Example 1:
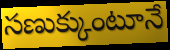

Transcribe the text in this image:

సణుక్కుంటూనే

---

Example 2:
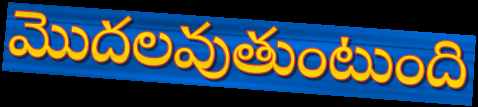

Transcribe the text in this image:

మొదలవుతుంటుంది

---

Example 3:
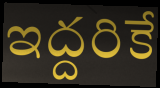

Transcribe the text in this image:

ఇద్దరికే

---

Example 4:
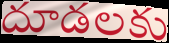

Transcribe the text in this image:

దూడలకు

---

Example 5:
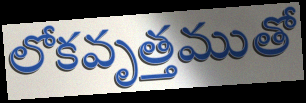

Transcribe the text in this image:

లోకవృత్తముతో